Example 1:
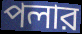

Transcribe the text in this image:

পলার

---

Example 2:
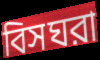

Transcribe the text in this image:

বিসঘরা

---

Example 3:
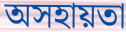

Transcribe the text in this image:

অসহায়তা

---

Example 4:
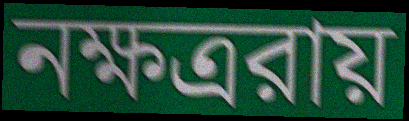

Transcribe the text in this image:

নক্ষত্ররায়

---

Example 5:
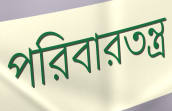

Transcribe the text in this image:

পরিবারতন্ত্র